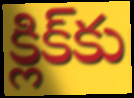
క్లిక్‌కు